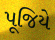
પૂજિયે